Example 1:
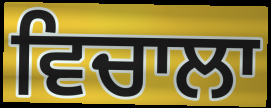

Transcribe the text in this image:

ਵਿਚਾਲਾ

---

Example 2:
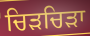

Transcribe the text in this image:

ਚਿੜਚਿੜਾ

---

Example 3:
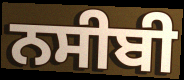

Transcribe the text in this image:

ਨਸੀਬੀ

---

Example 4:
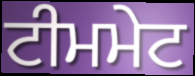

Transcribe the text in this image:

ਟੀਮਮੇਟ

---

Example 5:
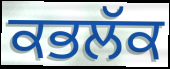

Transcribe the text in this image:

ਕਭਲੱਕ